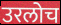
उरलोच